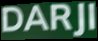
DARJI